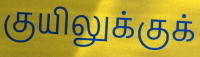
குயிலுக்குக்